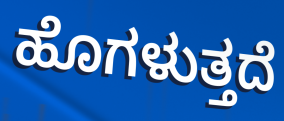
ಹೊಗಳುತ್ತದೆ